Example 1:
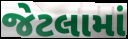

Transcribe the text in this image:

જેટલામાં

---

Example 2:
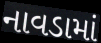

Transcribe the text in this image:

નાવડામાં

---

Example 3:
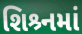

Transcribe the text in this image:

શિશ્ર્નમાં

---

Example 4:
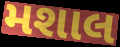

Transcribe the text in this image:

મશાલ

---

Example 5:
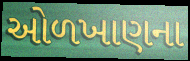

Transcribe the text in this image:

ઓળખાણના